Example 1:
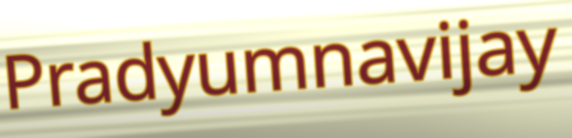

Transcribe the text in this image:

Pradyumnavijay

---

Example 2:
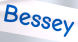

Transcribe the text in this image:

Bessey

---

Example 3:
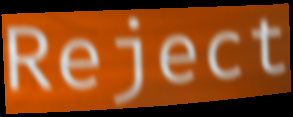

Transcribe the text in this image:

Reject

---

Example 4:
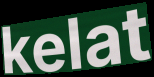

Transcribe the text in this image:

kelat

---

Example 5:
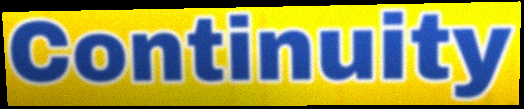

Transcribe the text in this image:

Continuity